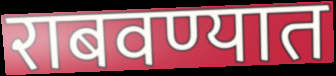
राबवण्यात